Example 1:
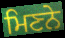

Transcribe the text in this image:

ਮਿਣਨੇ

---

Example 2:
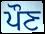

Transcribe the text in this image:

ਪੌਣ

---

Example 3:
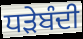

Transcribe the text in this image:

ਧੜੇਬੰਦੀ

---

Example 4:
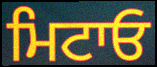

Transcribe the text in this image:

ਮਿਟਾਓ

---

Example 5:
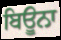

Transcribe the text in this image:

ਬਿਊਨਾ